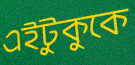
এইটুকুকে